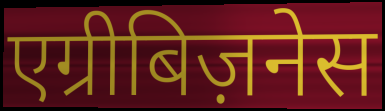
एग्रीबिज़नेस